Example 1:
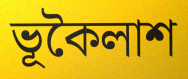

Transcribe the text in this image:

ভূকৈলাশ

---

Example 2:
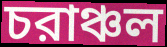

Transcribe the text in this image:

চরাঞ্চল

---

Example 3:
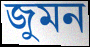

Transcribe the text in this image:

জুমন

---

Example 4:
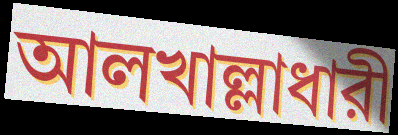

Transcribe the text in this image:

আলখাল্লাধারী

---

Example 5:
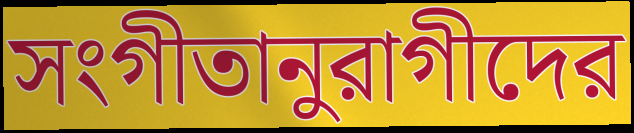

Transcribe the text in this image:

সংগীতানুরাগীদের